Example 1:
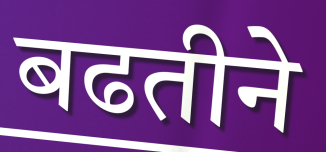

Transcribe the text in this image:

बढतीने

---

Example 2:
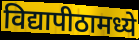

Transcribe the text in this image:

विद्यापीठामध्ये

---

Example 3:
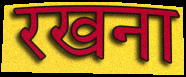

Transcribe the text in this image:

रखना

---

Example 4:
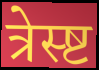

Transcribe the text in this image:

त्रेस्ष्ट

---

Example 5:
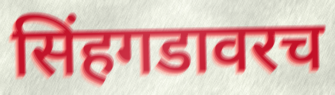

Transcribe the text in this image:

सिंहगडावरच